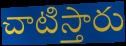
చాటిస్తారు